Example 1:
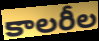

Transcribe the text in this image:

కాలరీల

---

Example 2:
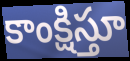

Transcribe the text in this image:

కాంక్షిస్తూ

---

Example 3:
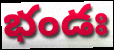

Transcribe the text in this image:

భండః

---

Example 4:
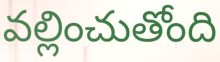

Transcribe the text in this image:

వల్లించుతోంది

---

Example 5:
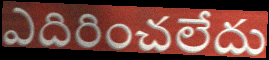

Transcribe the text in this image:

ఎదిరించలేదు